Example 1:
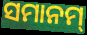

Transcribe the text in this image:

ସମାନମ୍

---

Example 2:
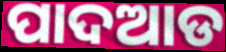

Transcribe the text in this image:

ପାଦଆଡ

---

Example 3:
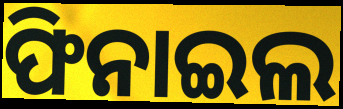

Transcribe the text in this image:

ଫିନାଇଲ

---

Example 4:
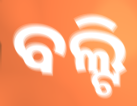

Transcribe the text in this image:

ବଲ୍ଟି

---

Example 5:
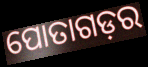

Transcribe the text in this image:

ପୋତାଗଡ଼ର